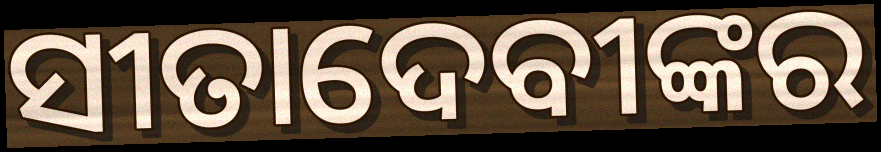
ସୀତାଦେବୀଙ୍କର